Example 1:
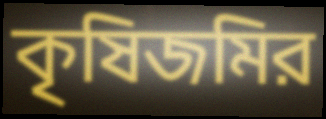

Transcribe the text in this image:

কৃষিজমির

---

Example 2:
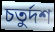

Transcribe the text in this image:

চতুর্দশ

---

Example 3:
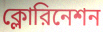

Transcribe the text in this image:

ক্লোরিনেশন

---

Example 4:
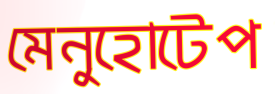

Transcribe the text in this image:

মেনুহোটেপ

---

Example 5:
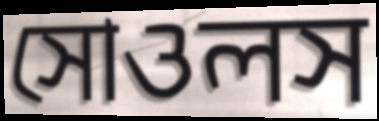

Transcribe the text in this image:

সোওলস